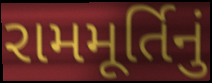
રામમૂર્તિનું